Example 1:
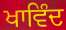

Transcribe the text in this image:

ਖਾਵਿੰਦ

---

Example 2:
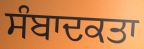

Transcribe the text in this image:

ਸੰਬਾਦਕਤਾ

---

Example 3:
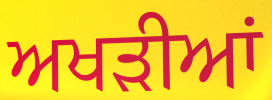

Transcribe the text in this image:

ਅਖੜੀਆਂ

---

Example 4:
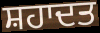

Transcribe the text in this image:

ਸ਼ਹਾਦਤ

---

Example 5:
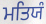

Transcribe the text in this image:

ਮਤਿਯੰ